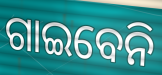
ଗାଇବେନି